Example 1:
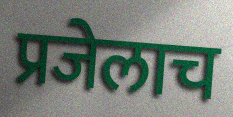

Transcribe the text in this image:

प्रजेलाच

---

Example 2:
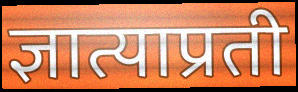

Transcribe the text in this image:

ज्ञात्याप्रती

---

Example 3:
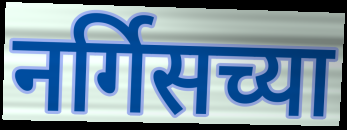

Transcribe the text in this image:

नर्गिसच्या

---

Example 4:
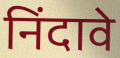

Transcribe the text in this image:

निंदावे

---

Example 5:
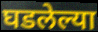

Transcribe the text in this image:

घडलेल्या